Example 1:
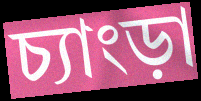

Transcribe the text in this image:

চ্যাংড়া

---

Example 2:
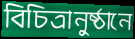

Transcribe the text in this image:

বিচিত্রানুষ্ঠানে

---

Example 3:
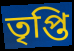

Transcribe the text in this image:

তৃপ্তি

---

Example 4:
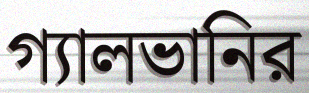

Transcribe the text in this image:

গ্যালভানির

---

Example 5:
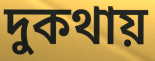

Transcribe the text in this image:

দুকথায়